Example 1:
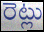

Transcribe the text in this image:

రెట్లు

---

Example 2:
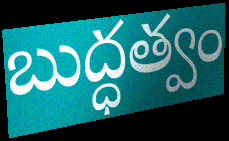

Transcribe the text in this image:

బుద్ధత్వం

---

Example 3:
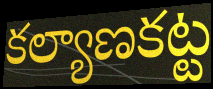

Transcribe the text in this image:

కల్యాణకట్ట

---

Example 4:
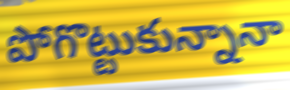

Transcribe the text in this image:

పోగొట్టుకున్నానా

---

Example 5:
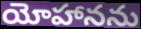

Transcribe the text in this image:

యోహానను